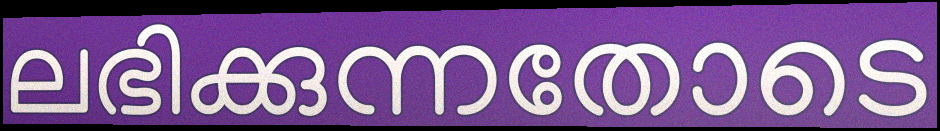
ലഭിക്കുന്നതോടെ